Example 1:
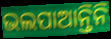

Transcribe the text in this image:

ଭଲପାଆନ୍ତିନି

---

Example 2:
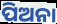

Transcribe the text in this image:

ପିଅନା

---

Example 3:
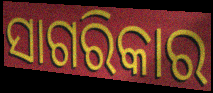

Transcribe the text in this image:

ସାଗରିକାର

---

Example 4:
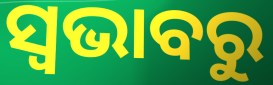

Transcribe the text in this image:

ସ୍ୱଭାବରୁ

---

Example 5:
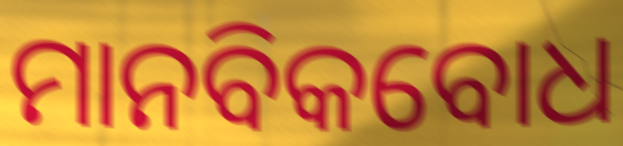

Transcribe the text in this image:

ମାନବିକବୋଧ